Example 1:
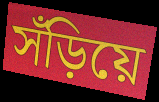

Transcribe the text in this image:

সঁড়িয়ে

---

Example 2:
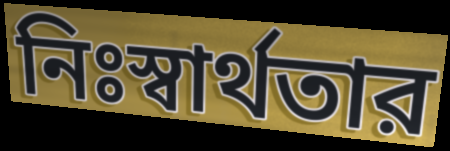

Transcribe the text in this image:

নিঃস্বার্থতার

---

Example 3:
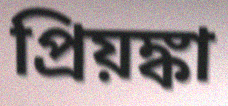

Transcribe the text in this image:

প্রিয়ঙ্কা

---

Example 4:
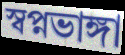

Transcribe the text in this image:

স্বপ্নভাঙ্গা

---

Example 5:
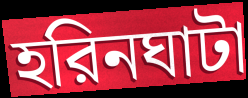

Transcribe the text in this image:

হরিনঘাটা